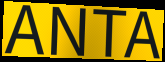
ANTA